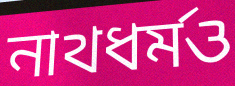
নাথধর্মও